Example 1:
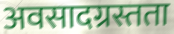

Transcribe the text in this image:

अवसादग्रस्तता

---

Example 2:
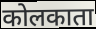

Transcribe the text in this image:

कोलकाता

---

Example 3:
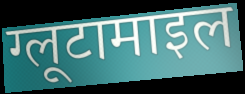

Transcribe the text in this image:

ग्लूटामाइल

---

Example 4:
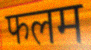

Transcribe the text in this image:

फलम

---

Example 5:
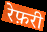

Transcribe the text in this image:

रेफ़री